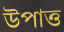
উপাত্ত